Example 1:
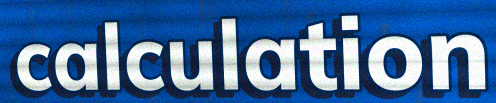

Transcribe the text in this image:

calculation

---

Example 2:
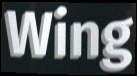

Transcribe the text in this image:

Wing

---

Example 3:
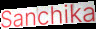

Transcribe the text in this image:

Sanchika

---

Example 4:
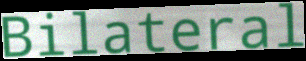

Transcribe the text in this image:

Bilateral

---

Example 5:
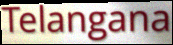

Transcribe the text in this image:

Telangana